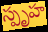
స్పృహ